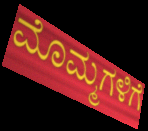
ಮೊಮ್ಮಗಳಿಗೆ